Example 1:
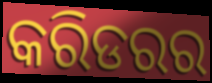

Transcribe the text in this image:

କରିଡରର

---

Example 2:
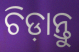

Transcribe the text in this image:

ଚିଡ଼ାନ୍ତୁ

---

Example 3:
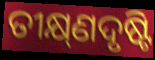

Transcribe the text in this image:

ତୀକ୍ଷ୍‌ଣଦୃଷ୍ଟି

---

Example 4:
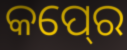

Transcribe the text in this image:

କପ୍‍ରେ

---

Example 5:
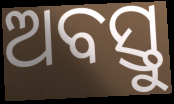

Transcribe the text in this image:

ଅବସ୍ତୁ